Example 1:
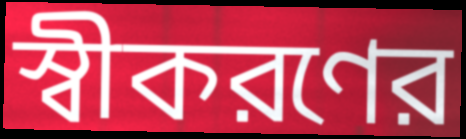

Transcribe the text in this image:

স্বীকরণের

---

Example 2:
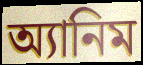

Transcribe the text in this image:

অ্যানিম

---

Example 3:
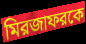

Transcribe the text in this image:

মিরজাফরকে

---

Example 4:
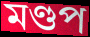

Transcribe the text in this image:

মণ্ডপ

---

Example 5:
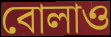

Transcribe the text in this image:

বোলাও